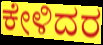
ಕೇಳಿದರ